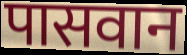
पासवान